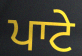
ਪਾਟੇ